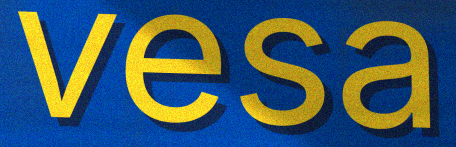
vesa